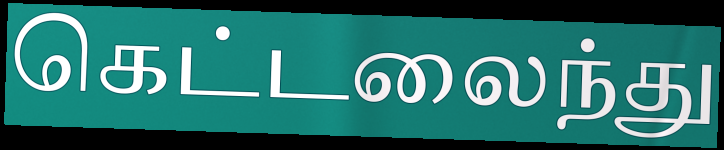
கெட்டலைந்து